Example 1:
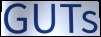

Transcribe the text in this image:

GUTs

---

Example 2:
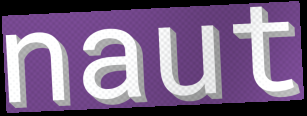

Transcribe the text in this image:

naut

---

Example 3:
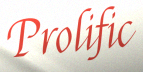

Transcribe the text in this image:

Prolific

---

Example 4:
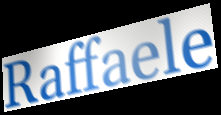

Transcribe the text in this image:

Raffaele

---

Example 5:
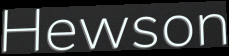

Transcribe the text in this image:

Hewson